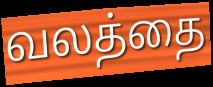
வலத்தை